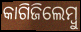
କାଗିଜିଲେମ୍ବୁ